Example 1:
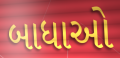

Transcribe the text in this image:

બાધાઓ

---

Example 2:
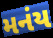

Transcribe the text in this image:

મનંય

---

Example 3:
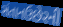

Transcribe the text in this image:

સંતાનઉછેરની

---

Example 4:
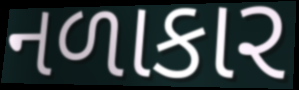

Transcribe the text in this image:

નળાકાર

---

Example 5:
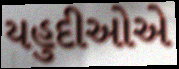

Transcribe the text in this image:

યહુદીઓએ